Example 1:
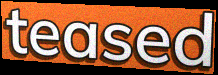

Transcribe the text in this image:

teased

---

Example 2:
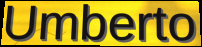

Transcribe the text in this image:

Umberto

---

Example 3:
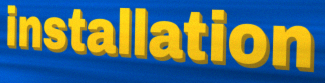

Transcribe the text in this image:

installation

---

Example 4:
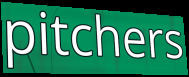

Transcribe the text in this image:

pitchers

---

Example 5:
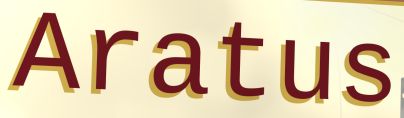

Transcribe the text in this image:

Aratus